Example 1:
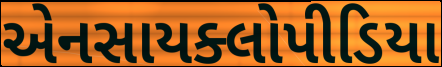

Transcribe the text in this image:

એનસાયક્લોપીડિયા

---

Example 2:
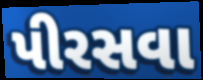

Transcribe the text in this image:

પીરસવા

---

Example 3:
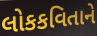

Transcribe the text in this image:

લોકકવિતાને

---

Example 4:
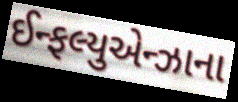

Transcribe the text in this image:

ઈન્ફલ્યુએન્ઝાના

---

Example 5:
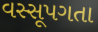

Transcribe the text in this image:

વસ્સૂપગતા